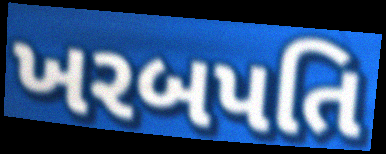
ખરબપતિ